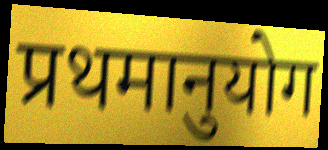
प्रथमानुयोग